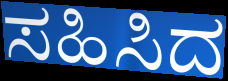
ಸಹಿಸಿದ